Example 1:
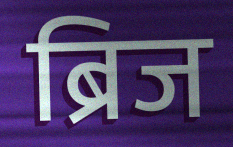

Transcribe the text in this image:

ब्रिज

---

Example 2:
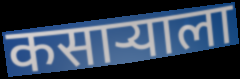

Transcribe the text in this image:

कसाऱ्याला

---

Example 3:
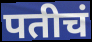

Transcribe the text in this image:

पतीचं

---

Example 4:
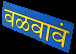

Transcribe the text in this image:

वळवावं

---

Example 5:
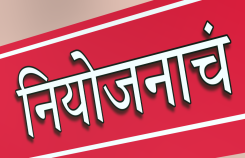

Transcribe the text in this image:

नियोजनाचं